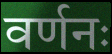
वर्णनः